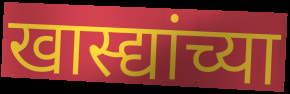
खास्द्यांच्या